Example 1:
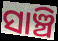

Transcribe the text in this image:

ସାଞ୍ଚି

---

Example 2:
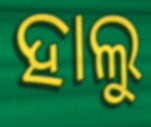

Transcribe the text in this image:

ହାଲୁ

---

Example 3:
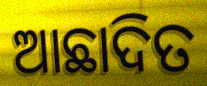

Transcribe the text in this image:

ଆଛାଦିତ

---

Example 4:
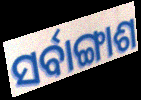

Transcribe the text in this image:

ସର୍ବାଙ୍ଗାଶ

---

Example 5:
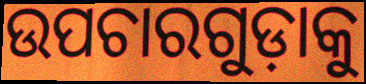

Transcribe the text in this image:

ଉପଚାରଗୁଡ଼ାକୁ